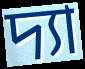
দ্যা